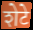
शेटे